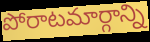
పోరాటమార్గాన్ని